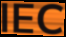
IEC